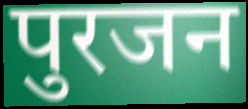
पुरजन